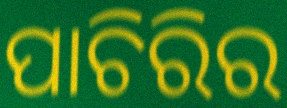
ପାଚିରିର